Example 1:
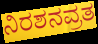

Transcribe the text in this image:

ನಿರಶನವ್ರತ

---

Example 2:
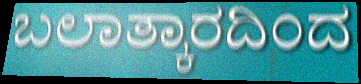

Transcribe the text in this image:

ಬಲಾತ್ಕಾರದಿಂದ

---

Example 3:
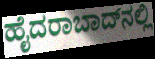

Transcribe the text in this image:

ಹೈದರಾಬಾದ್‌ನಲ್ಲಿ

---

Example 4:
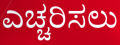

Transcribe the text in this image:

ಎಚ್ಚರಿಸಲು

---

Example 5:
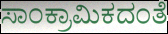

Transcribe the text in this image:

ಸಾಂಕ್ರಾಮಿಕದಂತೆ